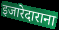
इजारेदाराना